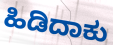
ಹಿಡಿದಾಕು